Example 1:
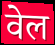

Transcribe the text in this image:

वेल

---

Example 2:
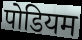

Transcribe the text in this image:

पोडियम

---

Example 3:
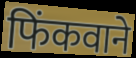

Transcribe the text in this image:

फिंकवाने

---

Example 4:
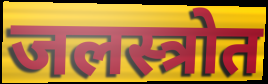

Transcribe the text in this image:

जलस्त्रोत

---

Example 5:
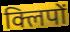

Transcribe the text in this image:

क्लिपों